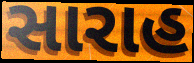
સારાહ